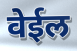
वेईल